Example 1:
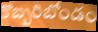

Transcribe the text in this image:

కొబ్బరిబోండం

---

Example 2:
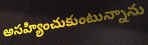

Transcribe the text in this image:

అసహ్యించుకుంటున్నాను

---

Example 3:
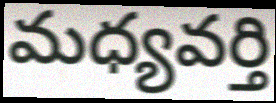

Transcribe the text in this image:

మధ్యవర్తి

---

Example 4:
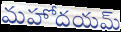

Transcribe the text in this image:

మహోదయమ్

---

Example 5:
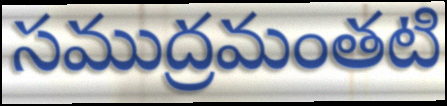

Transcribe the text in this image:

సముద్రమంతటి